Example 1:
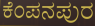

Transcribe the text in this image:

ಕೆಂಪನಪುರ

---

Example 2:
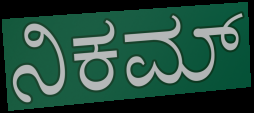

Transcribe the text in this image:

ನಿಕಮ್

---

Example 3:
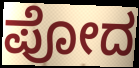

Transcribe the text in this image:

ಪೋದ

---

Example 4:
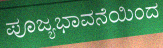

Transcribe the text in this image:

ಪೂಜ್ಯಭಾವನೆಯಿಂದ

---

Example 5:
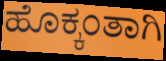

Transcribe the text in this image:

ಹೊಕ್ಕಂತಾಗಿ